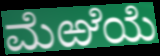
ಮೆಱೆಯೆ